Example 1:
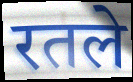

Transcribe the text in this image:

रतले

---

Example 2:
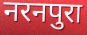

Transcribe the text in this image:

नरनपुरा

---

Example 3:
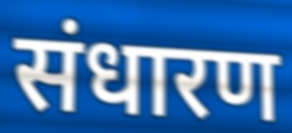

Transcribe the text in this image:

संधारण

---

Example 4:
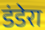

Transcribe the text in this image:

डंडेरा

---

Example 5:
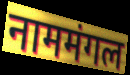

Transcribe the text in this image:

नाममंगल